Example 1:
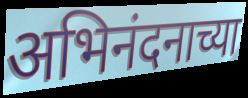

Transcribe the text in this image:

अभिनंदनाच्या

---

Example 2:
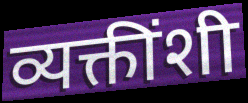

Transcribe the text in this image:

व्यक्तींशी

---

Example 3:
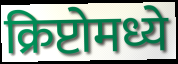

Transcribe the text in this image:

क्रिप्टोमध्ये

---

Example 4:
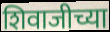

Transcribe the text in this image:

शिवाजीच्या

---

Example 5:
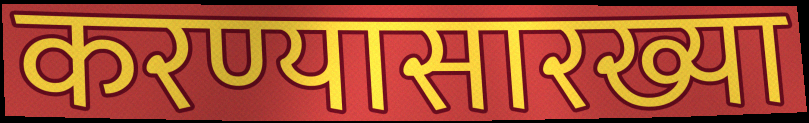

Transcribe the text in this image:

करण्यासारख्या